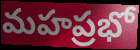
మహప్రభో